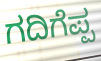
ಗದಿಗೆಪ್ಪ